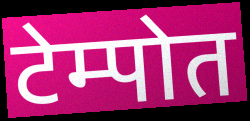
टेम्पोत